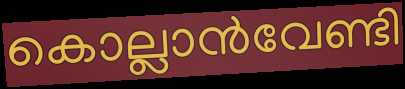
കൊല്ലാൻവേണ്ടി